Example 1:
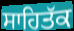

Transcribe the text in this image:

ਸਾਹਿਤੱਕ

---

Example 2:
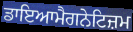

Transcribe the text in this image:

ਡਾਇਆਮੈਗਨੇਟਿਜ਼ਮ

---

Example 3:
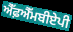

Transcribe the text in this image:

ਐੱਫ਼ਐੱਮਬੀਏਪੀ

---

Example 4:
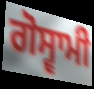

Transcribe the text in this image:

ਗੋਸ੍ਵਾਮੀ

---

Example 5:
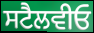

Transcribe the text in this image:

ਸਟੈਲਵੀਓ